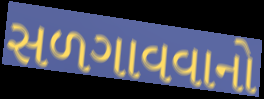
સળગાવવાનો